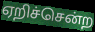
ஏறிச்சென்ற